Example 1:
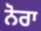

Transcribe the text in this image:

ਨੋਰਾ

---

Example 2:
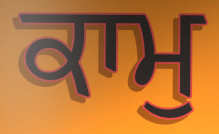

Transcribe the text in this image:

ਕਾਮੁ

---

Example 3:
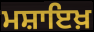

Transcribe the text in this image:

ਮਸ਼ਾਇਖ਼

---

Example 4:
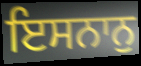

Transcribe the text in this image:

ਇਸਨਾਨੁ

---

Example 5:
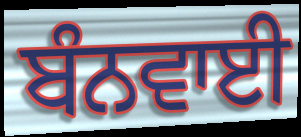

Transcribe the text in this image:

ਬੰਨਵਾਈ